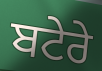
ਬਟੇਰੇ